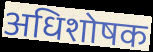
अधिशोषक